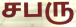
சபரு